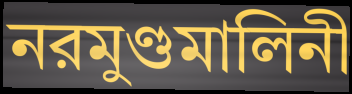
নরমুণ্ডমালিনী